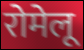
रोमेलू